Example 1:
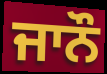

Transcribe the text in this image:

ਜਾਨੌ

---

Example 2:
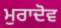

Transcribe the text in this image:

ਮੁਰਾਦੋਵ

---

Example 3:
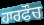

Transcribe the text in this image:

ਹਾਰਫੌਚ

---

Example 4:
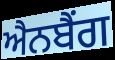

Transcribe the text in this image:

ਐਨਬੈਂਗ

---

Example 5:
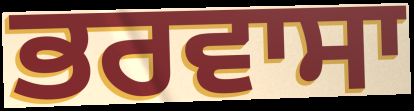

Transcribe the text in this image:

ਭਰਵਾਸਾ